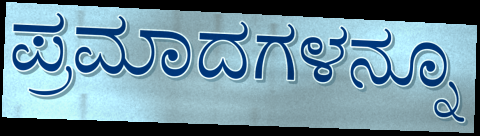
ಪ್ರಮಾದಗಳನ್ನೂ